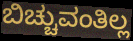
ಬಿಚ್ಚುವಂತಿಲ್ಲ